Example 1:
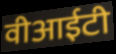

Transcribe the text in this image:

वीआईटी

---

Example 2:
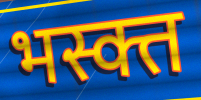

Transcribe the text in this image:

भस्क्त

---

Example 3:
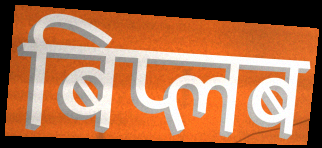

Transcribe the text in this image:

बिप्लब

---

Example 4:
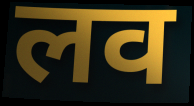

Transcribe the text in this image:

लव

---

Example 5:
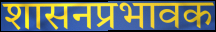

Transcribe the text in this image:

शासनप्रभावक